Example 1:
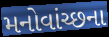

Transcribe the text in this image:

મનોવાંચ્છના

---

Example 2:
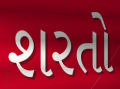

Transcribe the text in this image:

શરતો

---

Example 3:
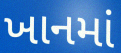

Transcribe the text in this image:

ખાનમાં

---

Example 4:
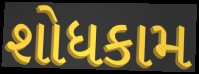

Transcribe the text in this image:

શોધકામ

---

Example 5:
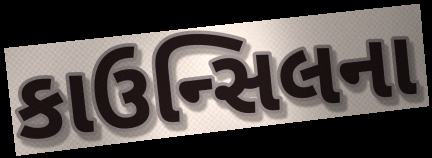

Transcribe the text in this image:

કાઉન્સિલના